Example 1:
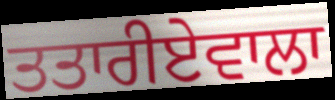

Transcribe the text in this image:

ਤਤਾਰੀਏਵਾਲਾ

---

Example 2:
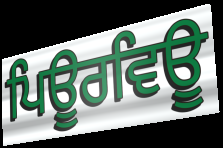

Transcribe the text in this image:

ਪਿਊਰਵਿਊ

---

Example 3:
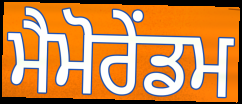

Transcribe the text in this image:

ਮੈਮੋਰੇਂਡਮ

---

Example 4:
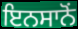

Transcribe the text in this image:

ਇਨਸਾਨੋਂ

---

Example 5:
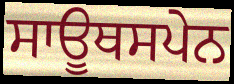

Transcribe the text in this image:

ਸਾਊਥਸਪੇਨ